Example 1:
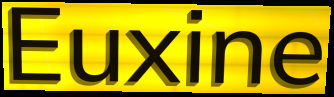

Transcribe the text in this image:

Euxine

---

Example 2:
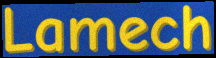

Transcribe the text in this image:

Lamech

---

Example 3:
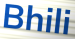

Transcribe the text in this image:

Bhili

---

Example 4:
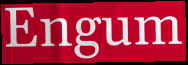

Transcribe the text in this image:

Engum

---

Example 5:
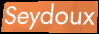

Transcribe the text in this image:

Seydoux